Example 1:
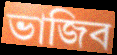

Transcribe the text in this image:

ভাজিব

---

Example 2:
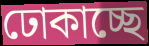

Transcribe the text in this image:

ঢোকাচ্ছে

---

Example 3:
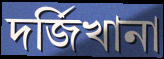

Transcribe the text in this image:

দর্জিখানা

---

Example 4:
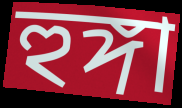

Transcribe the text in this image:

হুঙ্গা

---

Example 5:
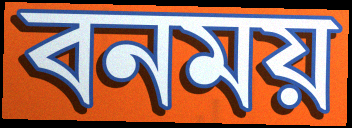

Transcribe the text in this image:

বনময়